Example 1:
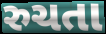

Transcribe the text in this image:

રુચતા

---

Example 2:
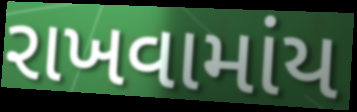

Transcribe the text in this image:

રાખવામાંય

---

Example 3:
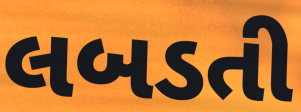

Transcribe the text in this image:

લબડતી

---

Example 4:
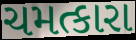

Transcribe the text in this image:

ચમત્કારા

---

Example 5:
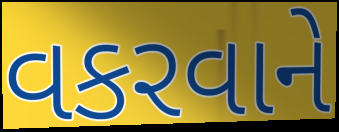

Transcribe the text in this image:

વકરવાને